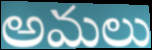
అమలు